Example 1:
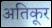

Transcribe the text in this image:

अतिकूर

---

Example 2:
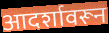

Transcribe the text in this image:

आदर्शावरून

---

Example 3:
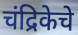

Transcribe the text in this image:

चंद्रिकेचे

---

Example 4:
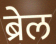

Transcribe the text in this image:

ब्रेल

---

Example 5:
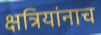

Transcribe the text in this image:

क्षत्रियांनाच